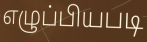
எழுப்பியபடி